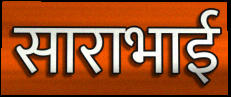
साराभाई